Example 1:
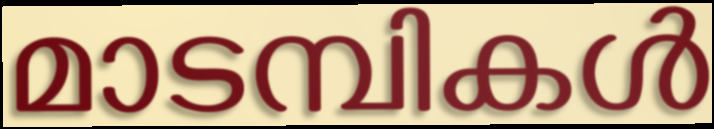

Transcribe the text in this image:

മാടമ്പികൾ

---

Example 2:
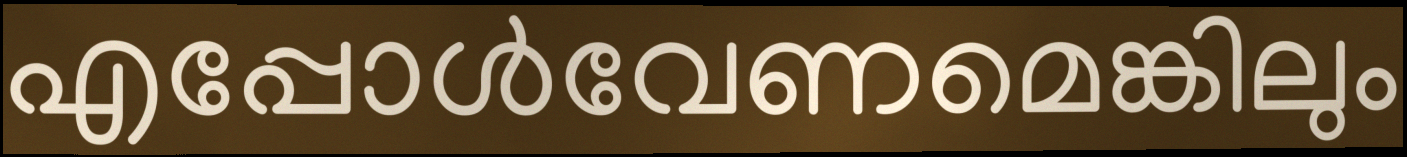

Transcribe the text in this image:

എപ്പോൾവേണമെങ്കിലും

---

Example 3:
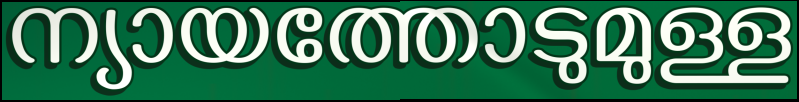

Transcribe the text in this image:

ന്യായത്തോടുമുള്ള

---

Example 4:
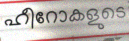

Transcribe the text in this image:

ഹീറോകളുടെ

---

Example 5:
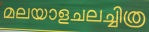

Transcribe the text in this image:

മലയാളചലച്ചിത്ര